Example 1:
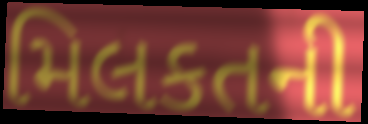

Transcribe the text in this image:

મિલકતની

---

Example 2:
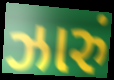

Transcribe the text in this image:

ઝારું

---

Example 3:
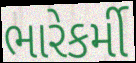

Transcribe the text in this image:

ભારેકર્મી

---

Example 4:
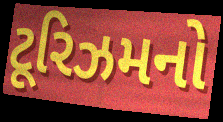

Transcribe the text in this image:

ટૂરિઝમનો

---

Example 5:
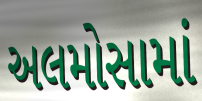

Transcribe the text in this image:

અલમોસામાં